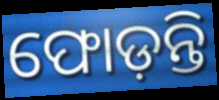
ଫୋଡ଼ନ୍ତି